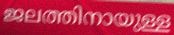
ജലത്തിനായുള്ള